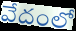
వేదంలో